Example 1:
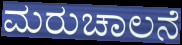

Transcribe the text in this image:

ಮರುಚಾಲನೆ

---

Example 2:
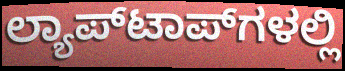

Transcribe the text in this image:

ಲ್ಯಾಪ್‌ಟಾಪ್‌ಗಳಲ್ಲಿ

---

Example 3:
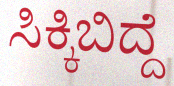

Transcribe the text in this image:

ಸಿಕ್ಕಿಬಿದ್ದೆ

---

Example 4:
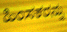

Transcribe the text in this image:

ಹಿಂಸಕರನ್ನು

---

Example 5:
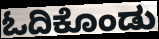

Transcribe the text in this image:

ಓದಿಕೊಂಡು